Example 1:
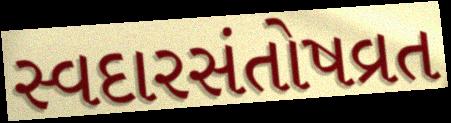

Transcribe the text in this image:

સ્વદારસંતોષવ્રત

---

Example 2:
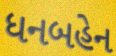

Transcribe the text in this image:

ધનબહેન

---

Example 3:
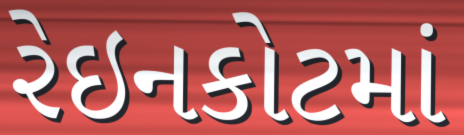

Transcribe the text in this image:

રેઇનકોટમાં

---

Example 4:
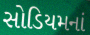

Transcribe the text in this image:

સોડિયમનાં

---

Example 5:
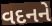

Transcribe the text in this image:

વદનને